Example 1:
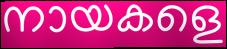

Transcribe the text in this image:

നായകളെ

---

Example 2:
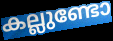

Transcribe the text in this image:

കല്ലുണ്ടോ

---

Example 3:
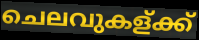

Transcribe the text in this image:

ചെലവുകള്ക്ക്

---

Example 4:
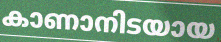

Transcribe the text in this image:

കാണാനിടയായ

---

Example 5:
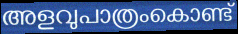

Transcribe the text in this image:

അളവുപാത്രംകൊണ്ട്